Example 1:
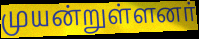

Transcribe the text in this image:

முயன்றுள்ளனர்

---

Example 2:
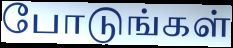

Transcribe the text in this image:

போடுங்கள்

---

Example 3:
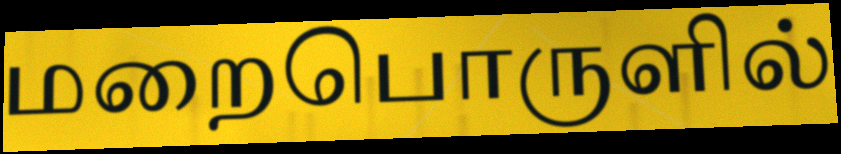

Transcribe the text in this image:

மறைபொருளில்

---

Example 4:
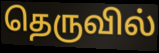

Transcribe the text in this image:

தெருவில்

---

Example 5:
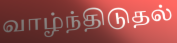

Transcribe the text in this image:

வாழ்ந்திடுதல்